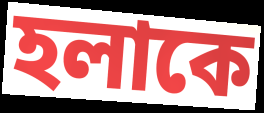
হলাকে